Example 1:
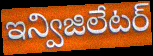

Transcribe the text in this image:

ఇన్విజిలేటర్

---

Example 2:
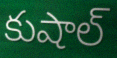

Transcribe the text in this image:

కుషాల్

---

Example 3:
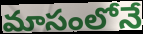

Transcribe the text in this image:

మాసంలోనే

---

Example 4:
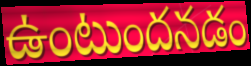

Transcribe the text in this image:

ఉంటుందనడం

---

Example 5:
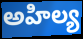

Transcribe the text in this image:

అహిల్య